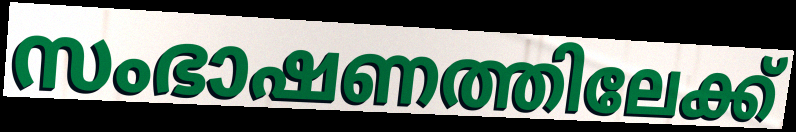
സംഭാഷണത്തിലേക്ക്